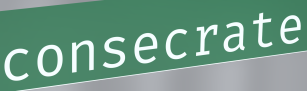
consecrate